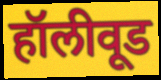
हॉलीवूड